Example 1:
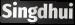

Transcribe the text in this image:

Singdhui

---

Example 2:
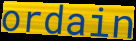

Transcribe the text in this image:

ordain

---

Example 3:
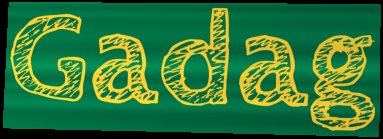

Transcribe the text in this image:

Gadag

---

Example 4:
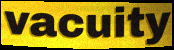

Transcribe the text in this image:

vacuity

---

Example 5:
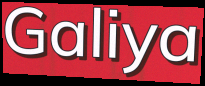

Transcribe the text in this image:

Galiya